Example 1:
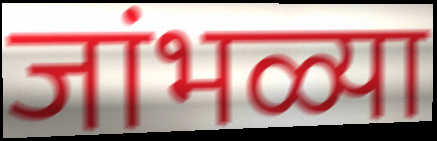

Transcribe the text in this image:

जांभळ्या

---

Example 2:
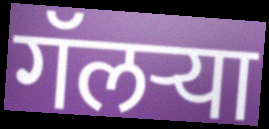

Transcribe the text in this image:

गॅलऱ्या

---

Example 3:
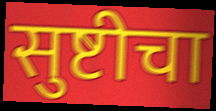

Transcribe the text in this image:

सुष्टीचा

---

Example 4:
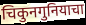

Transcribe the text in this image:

चिकुनगुनियाचा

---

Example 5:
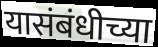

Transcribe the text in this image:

यासंबंधीच्या